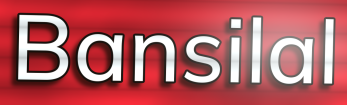
Bansilal